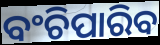
ବଂଚିପାରିବ